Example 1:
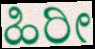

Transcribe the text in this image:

ಹಿರೀ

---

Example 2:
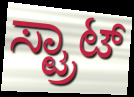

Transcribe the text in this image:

ಸ್ಟ್ರಾಟ್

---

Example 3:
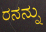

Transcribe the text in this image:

ರನನ್ನು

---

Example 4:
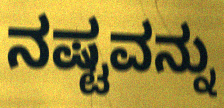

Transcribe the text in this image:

ನಷ್ಟವನ್ನು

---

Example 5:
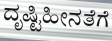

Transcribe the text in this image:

ದೃಷ್ಟಿಹೀನತೆಗೆ